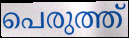
പെരുത്ത്